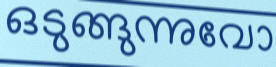
ഒടുങ്ങുന്നുവോ